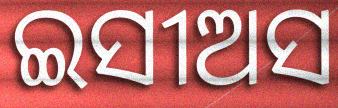
ଇସୀଅସ